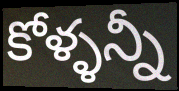
కోళ్ళన్నీ